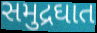
સમુદ્રઘાત